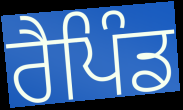
ਰੈਪਿੰਡ